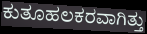
ಕುತೂಹಲಕರವಾಗಿತ್ತು